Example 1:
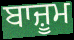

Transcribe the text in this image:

ਬਾਜ਼ੂਮ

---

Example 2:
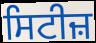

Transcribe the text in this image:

ਸਿਟੀਜ਼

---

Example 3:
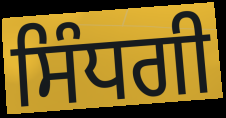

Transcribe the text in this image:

ਸਿੰਧਗੀ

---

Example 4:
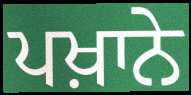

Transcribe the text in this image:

ਪਖ਼ਾਨੇ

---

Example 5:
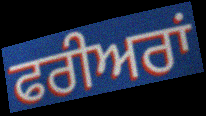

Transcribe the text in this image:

ਫਰੀਅਰਾਂ